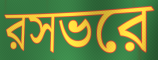
রসভরে